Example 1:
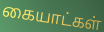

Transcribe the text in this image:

கையாட்கள்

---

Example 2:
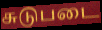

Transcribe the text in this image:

சுடுபடை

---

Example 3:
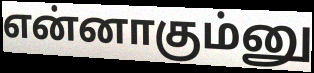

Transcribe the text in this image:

என்னாகும்னு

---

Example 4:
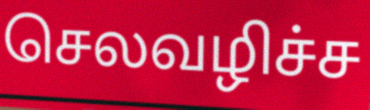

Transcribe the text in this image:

செலவழிச்ச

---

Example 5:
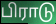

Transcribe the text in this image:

பிராடு